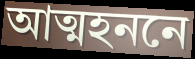
আত্মহননে